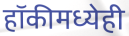
हॉकीमध्येही